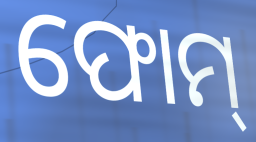
ଫୋମ୍